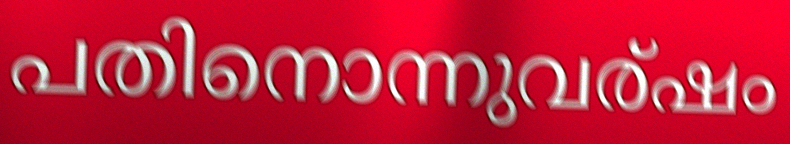
പതിനൊന്നുവര്ഷം